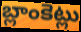
బ్లాంకెట్లు